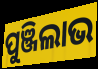
ପୁଞ୍ଜିଲାଭ